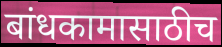
बांधकामासाठीच